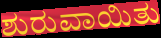
ಶುರುವಾಯಿತು